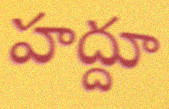
హద్దూ